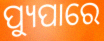
ପ୍ୟୁପାରେ